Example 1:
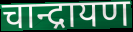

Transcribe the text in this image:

चान्द्रायण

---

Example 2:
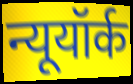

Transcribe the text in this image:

न्यूयॉर्क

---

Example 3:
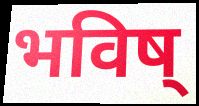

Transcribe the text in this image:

भविष्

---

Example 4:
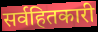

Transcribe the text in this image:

सर्वहितकारी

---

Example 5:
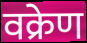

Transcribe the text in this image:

वक्रेण